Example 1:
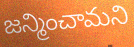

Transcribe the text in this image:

జన్మించామని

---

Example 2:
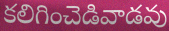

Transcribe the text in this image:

కలిగించెడివాడవు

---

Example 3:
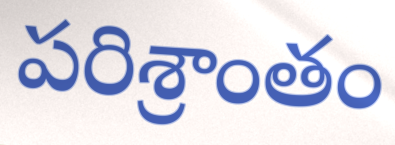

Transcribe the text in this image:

పరిశ్రాంతం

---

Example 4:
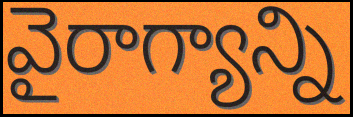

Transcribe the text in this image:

వైరాగ్యాన్ని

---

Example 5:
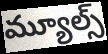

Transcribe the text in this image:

మ్యూల్స్